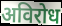
अविरोध